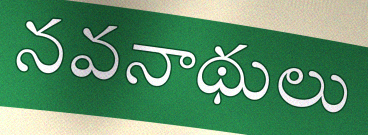
నవనాథులు